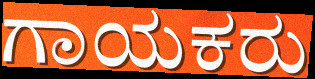
ಗಾಯಕರು